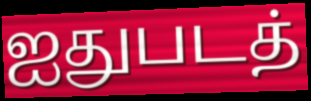
ஐதுபடத்